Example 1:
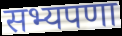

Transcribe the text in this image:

सभ्यपणा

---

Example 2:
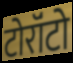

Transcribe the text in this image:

टोरॉंटो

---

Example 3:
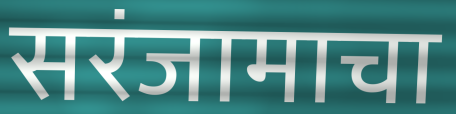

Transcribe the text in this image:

सरंजामाचा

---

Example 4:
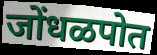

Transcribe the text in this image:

जोंधळपोत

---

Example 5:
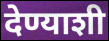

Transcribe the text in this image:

देण्याशी